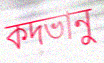
কদভানু